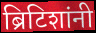
ब्रिटिशांनी